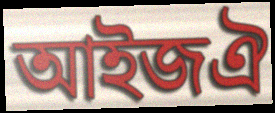
আইজঐ